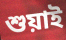
শুয়াই